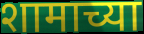
शामाच्या